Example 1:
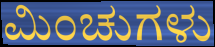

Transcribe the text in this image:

ಮಿಂಚುಗಳು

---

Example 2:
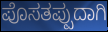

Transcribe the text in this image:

ಪೊಸತಪ್ಪುದಾಗಿ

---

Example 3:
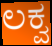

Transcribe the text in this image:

ಲಕ್ವ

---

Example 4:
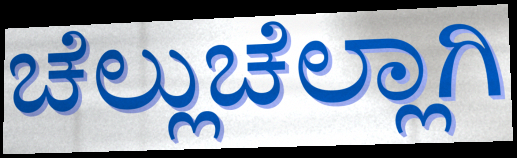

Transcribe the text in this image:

ಚೆಲ್ಲುಚೆಲ್ಲಾಗಿ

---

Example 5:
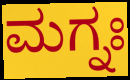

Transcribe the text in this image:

ಮಗ್ನಃ